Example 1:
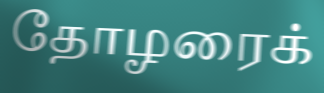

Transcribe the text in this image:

தோழரைக்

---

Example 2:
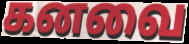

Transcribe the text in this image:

கனவை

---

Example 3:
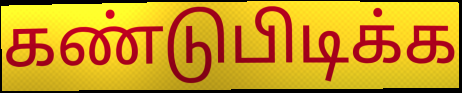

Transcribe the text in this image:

கண்டுபிடிக்க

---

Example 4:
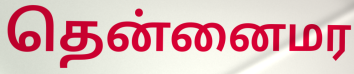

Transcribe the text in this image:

தென்னைமர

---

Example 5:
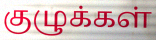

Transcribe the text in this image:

குழுக்கள்